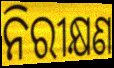
ନିରୀକ୍ଷଣ